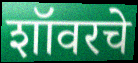
शॉवरचे